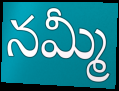
నమ్మీ